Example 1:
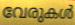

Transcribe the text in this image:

വേരുകൾ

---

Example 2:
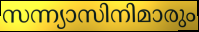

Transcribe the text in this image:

സന്ന്യാസിനിമാരും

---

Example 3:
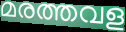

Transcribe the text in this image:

മരത്തവള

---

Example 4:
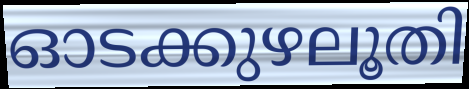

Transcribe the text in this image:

ഓടക്കുഴലൂതി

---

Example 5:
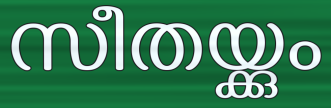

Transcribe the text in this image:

സീതയ്ക്കും